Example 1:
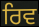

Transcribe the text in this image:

ਰਿਵ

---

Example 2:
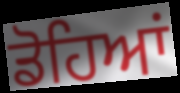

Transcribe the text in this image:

ਡੋਹਿਆਂ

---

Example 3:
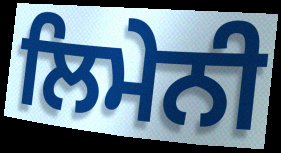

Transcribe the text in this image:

ਲਿਮੇਨੀ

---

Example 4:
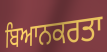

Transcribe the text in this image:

ਬਿਆਨਕਰਤਾ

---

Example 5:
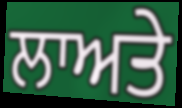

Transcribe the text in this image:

ਲਾਅਤੇ